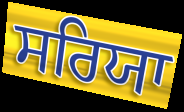
ਸਰਿਯਾ